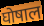
घोषाल